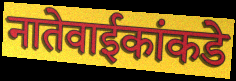
नातेवाईकांकडे